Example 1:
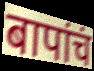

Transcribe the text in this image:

बापांचं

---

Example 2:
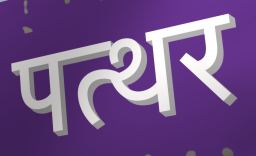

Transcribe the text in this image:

पत्थर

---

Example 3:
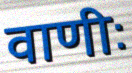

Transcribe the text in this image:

वाणीः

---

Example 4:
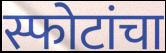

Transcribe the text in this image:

स्फोटांचा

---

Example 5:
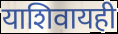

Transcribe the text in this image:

याशिवायही